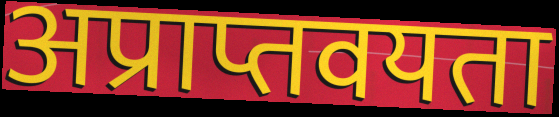
अप्राप्तवयता